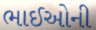
ભાઈઓની